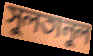
সুলতানুল